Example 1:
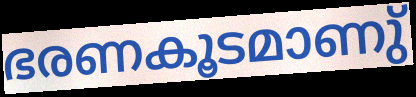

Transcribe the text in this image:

ഭരണകൂടമാണു്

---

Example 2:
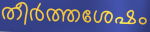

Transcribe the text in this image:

തീർത്തശേഷം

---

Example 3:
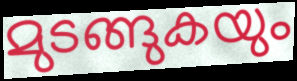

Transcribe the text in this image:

മുടങ്ങുകയും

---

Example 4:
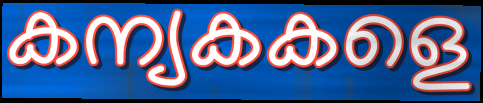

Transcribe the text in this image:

കന്യകകളെ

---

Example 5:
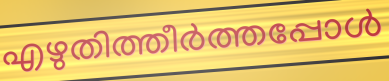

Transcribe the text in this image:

എഴുതിത്തീർത്തപ്പോൾ